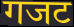
गजट